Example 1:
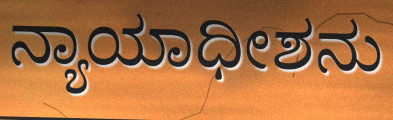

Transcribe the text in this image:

ನ್ಯಾಯಾಧೀಶನು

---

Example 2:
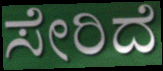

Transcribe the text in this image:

ಸೇರಿದೆ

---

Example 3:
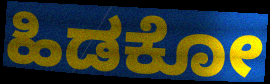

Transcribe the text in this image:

ಹಿಡಕೋ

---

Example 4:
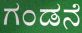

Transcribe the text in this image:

ಗಂಡನೆ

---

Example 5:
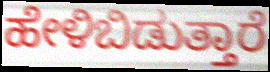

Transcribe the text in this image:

ಹೇಳಿಬಿಡುತ್ತಾರೆ